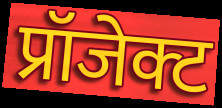
प्रॉजेक्‍ट